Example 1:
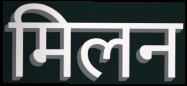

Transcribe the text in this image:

मिलन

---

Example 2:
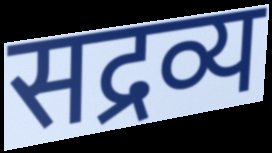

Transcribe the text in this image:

सद्रव्य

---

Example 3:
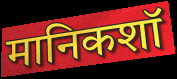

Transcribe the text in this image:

मानिकशॉ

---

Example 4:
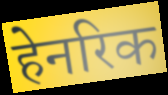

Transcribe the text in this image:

हेनरिक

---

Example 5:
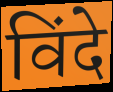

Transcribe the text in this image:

विंदे